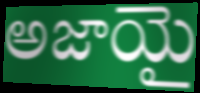
అజాయై